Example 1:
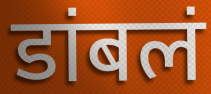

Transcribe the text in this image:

डांबलं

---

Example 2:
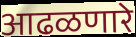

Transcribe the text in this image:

आढळणारे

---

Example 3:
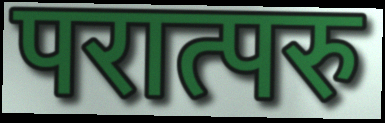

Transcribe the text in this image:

परात्परु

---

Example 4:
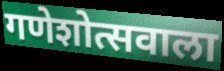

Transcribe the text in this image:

गणेशोत्सवाला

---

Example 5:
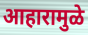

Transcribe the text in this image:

आहारामुळे